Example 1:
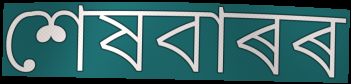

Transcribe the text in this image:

শেষবাৰৰ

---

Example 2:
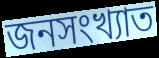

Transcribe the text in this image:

জনসংখ্যাত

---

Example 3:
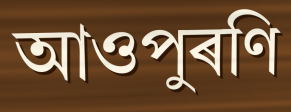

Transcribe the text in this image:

আওপুৰণি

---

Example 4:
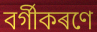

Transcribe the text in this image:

বৰ্গীকৰণে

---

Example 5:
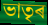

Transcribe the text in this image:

ভাতৃৰ